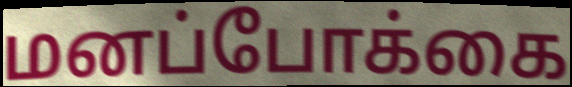
மனப்போக்கை